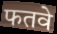
फतवे